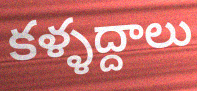
కళ్ళద్దాలు